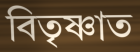
বিতৃষ্ণাত